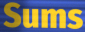
Sums